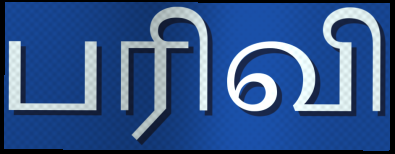
பரிவி